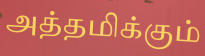
அத்தமிக்கும்